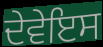
ਦੇਵੇਇਸ